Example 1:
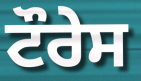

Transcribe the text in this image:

ਟੌਰੇਸ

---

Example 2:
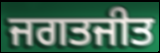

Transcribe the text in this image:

ਜਗਤਜੀਤ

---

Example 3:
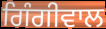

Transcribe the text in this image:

ਗਿੰਗੀਵਾਲ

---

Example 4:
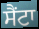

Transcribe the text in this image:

ਸੈਂਟਾ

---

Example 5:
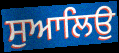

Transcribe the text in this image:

ਸੁਆਲਿਉ